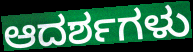
ಆದರ್ಶಗಳು